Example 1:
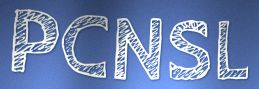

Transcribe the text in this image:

PCNSL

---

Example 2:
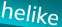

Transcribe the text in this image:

helike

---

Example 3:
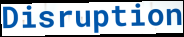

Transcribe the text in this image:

Disruption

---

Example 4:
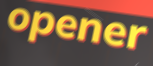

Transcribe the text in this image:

opener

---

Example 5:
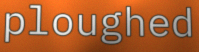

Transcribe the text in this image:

ploughed